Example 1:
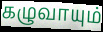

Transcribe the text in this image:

கழுவாயும்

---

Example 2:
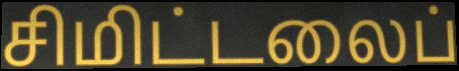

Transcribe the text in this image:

சிமிட்டலைப்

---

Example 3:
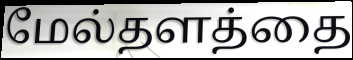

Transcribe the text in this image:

மேல்தளத்தை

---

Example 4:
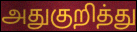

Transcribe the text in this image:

அதுகுறித்து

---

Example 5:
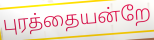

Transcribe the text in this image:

புரத்தையன்றே